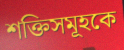
শক্তিসমূহকে